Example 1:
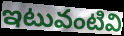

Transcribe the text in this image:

ఇటువంటివి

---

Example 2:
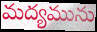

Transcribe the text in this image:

మద్యమును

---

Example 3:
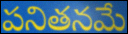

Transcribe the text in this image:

పనితనమే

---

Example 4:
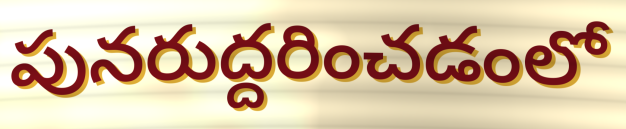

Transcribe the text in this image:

పునరుద్దరించడంలో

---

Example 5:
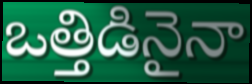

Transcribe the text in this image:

ఒత్తిడినైనా